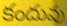
కందువు